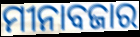
ମୀନାବଜାର